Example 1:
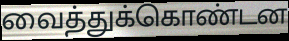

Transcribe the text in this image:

வைத்துக்கொண்டன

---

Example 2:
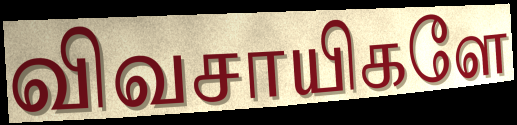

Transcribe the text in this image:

விவசாயிகளே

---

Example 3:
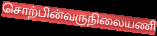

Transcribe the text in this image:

சொற்பின்வருநிலையணி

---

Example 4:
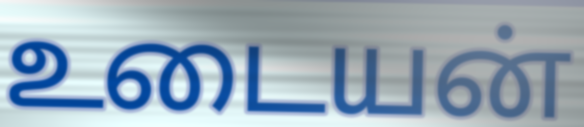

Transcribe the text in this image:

உடையன்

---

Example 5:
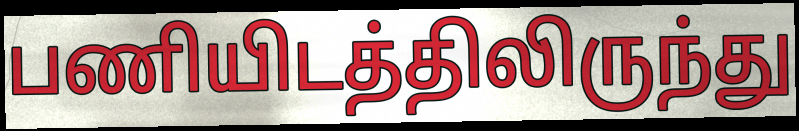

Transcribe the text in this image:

பணியிடத்திலிருந்து